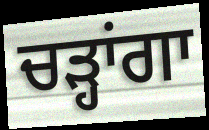
ਚੜ੍ਹਾਂਗਾ